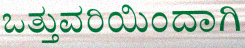
ಒತ್ತುವರಿಯಿಂದಾಗಿ